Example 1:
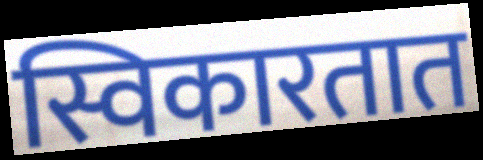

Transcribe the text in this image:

स्विकारतात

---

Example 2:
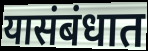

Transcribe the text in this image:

यासंबंधात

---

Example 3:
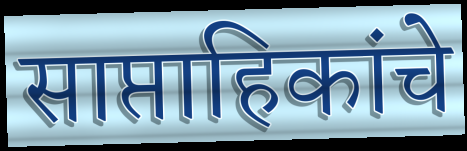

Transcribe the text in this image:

साप्ताहिकांचे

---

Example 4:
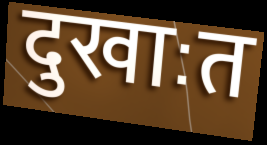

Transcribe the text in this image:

दुखाःत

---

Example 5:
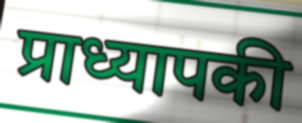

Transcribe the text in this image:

प्राध्यापकी